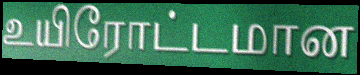
உயிரோட்டமான